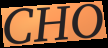
CHO